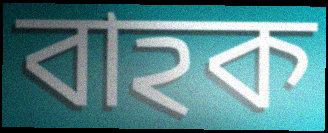
বাহক